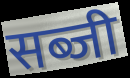
सब्जी